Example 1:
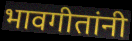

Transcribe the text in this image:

भावगीतांनी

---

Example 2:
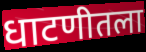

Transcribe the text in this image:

धाटणीतला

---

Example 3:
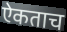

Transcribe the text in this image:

ऐकताच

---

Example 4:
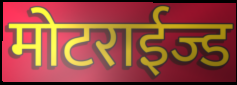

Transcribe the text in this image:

मोटराईज्ड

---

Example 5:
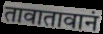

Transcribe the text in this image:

तावातावानं